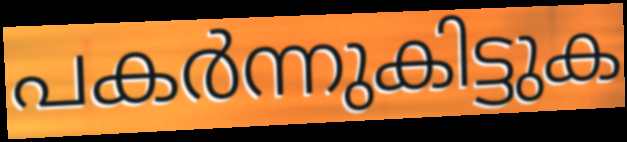
പകർന്നുകിട്ടുക